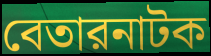
বেতারনাটক